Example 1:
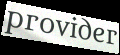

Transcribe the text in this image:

provider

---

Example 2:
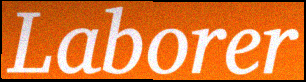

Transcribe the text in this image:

Laborer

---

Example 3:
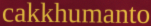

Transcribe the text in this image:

cakkhumanto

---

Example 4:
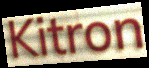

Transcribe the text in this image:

Kitron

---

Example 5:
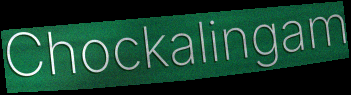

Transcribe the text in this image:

Chockalingam